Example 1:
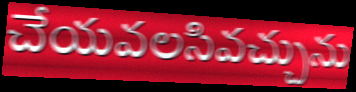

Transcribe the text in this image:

చేయవలసివచ్చును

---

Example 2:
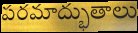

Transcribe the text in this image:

పరమాద్భుతాలు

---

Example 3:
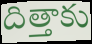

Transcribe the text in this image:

దిత్తాకు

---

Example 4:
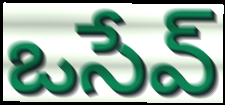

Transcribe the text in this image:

ఒసేవ్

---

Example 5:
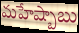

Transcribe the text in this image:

మహేష్బాబు